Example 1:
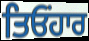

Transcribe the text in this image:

ਤਿਓਂਹਾਰ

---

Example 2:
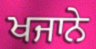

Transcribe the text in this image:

ਖਜਾਨੇ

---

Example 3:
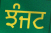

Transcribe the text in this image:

ਝੰਜਟ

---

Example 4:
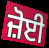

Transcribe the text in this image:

ਜ਼ੋਈ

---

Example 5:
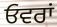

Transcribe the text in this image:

ਓਵਰਾਂ